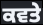
ਕਵਤੇ